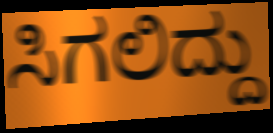
ಸಿಗಲಿದ್ದು